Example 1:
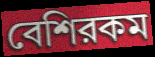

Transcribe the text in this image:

বেশিরকম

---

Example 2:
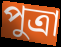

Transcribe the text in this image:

পুত্রা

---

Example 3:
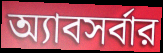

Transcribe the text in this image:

অ্যাবসর্বার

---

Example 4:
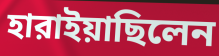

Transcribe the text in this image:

হারাইয়াছিলেন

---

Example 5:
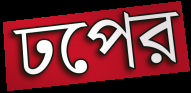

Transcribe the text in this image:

ঢপের